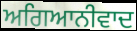
ਅਗਿਆਨੀਵਾਦ